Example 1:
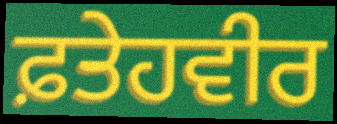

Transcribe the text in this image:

ਫ਼ਤੇਹਵੀਰ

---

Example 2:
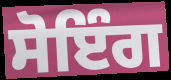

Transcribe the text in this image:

ਸੋਇੰਗ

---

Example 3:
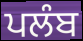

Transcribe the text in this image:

ਪਲੰਬ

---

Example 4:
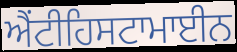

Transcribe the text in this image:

ਐਂਟੀਹਿਸਟਾਮਾਈਨ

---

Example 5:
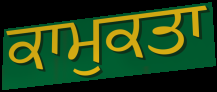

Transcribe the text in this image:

ਕਾਮੁਕਤਾ